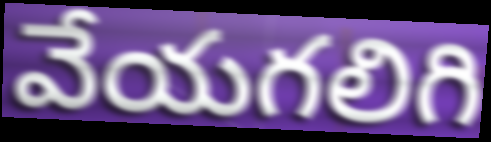
వేయగలిగి